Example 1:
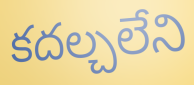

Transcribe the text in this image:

కదల్చలేని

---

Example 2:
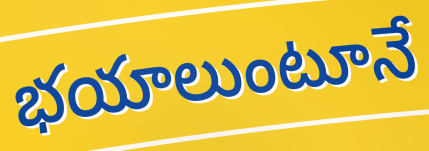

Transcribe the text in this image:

భయాలుంటూనే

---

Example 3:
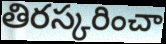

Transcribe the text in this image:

తిరస్కరించా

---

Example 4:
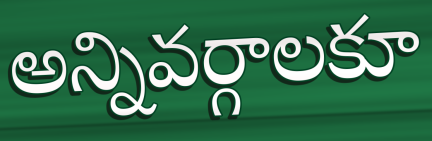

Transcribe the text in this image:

అన్నివర్గాలకూ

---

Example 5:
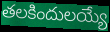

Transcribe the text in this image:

తలకిందులయ్యే